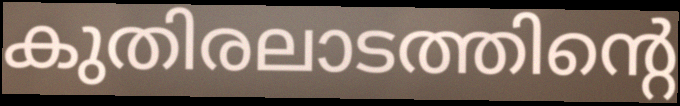
കുതിരലാടത്തിന്റെ